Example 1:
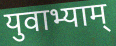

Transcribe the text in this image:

युवाभ्याम्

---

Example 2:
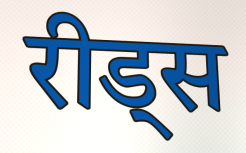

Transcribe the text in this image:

रीड्स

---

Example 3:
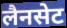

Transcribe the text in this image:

लैनसेट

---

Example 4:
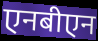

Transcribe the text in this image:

एनबीएन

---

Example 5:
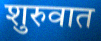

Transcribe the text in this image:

शुरुवात